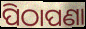
ପିଠାପଣା